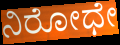
ನಿರೋಧೇ